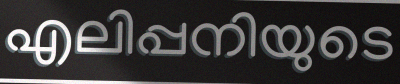
എലിപ്പനിയുടെ